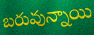
బరువున్నాయి